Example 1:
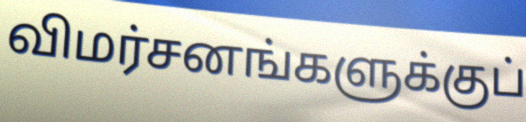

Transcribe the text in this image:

விமர்சனங்களுக்குப்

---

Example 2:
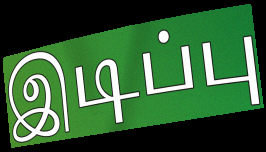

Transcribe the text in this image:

இடிப்பு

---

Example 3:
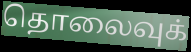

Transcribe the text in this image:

தொலைவுக்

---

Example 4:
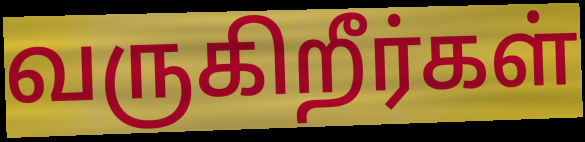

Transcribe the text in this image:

வருகிறீர்கள்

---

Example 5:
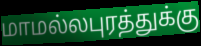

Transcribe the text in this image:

மாமல்லபுரத்துக்கு